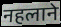
नहलाने